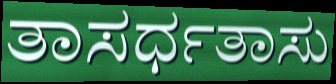
ತಾಸರ್ಧತಾಸು